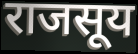
राजसूय